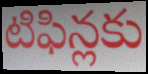
టిఫిన్లకు